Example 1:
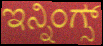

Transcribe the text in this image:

ಇನ್ನಿಂಗ್ಸ್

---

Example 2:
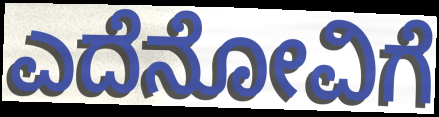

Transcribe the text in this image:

ಎದೆನೋವಿಗೆ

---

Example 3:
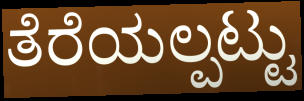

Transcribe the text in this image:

ತೆರೆಯಲ್ಪಟ್ಟು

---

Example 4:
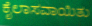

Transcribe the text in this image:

ಕೈಲಾಸವಾಯಿತು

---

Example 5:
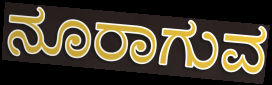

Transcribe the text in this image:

ನೂರಾಗುವ